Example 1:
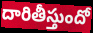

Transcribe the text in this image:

దారితీస్తుందో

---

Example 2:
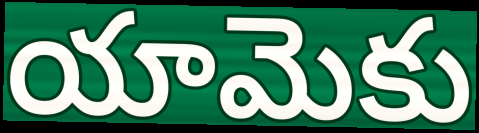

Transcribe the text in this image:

యామెకు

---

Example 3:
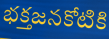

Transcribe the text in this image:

భక్తజనకోటికి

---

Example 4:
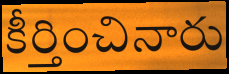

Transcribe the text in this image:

కీర్తించినారు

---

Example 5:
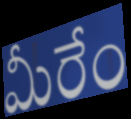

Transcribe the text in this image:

మీరేం